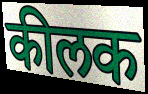
कीलक